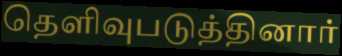
தெளிவுபடுத்தினார்